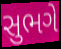
સુભગે